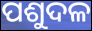
ପଶୁଦଳ